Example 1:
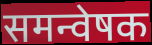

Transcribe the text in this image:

समन्वेषक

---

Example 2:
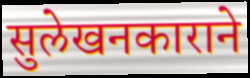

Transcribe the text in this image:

सुलेखनकाराने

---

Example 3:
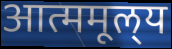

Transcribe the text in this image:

आत्ममूल्य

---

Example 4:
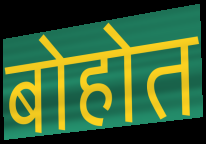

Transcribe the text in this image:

बोहोत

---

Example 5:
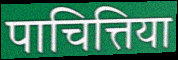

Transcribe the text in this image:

पाचित्तिया